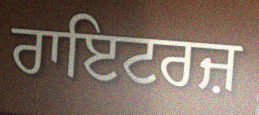
ਰਾਇਟਰਜ਼